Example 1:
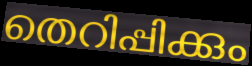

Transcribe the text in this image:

തെറിപ്പിക്കും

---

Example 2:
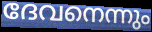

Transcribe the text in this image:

ദേവനെന്നും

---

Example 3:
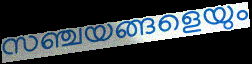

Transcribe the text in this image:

സഞ്ചയങ്ങളെയും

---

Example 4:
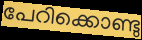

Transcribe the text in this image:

പേറിക്കൊണ്ടു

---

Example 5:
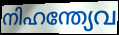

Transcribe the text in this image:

നിഹന്ത്യേവ